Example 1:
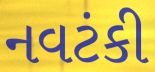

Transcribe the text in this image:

નવટંકી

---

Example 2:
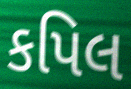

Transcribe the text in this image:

કપિલ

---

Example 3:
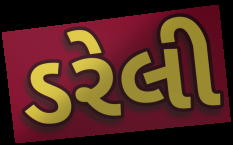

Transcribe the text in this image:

ડરેલી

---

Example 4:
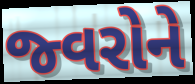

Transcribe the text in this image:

જ્વરોને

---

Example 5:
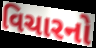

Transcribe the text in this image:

વિચારનો